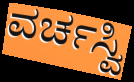
ವರ್ಚಸ್ವಿ